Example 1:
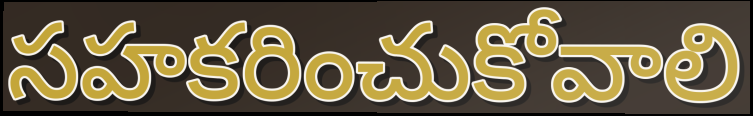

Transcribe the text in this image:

సహకరించుకోవాలి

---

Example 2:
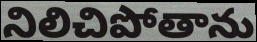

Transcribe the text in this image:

నిలిచిపోతాను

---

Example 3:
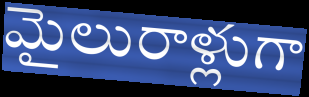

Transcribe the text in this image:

మైలురాళ్లుగా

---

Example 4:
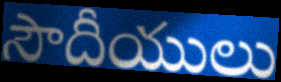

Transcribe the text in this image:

సౌదీయులు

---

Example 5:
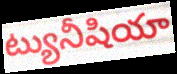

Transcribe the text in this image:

ట్యునీషియా